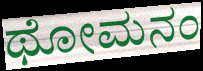
ಥೋಮನಂ